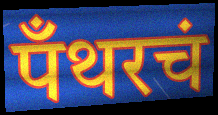
पँथरचं